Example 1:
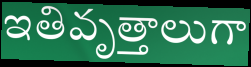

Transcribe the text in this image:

ఇతివృత్తాలుగా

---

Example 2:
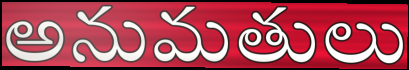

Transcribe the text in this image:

అనుమతులు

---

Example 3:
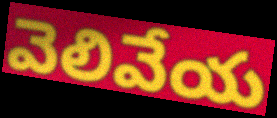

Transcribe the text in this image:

వెలివేయ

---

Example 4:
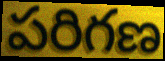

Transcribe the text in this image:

పరిగణ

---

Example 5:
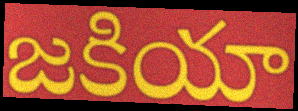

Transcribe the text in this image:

జకియా